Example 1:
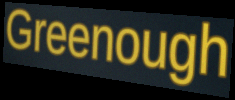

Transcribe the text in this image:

Greenough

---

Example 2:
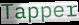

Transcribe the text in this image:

Tapper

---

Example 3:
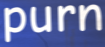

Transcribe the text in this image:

purn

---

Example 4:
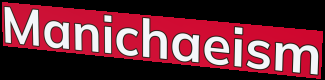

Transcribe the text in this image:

Manichaeism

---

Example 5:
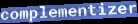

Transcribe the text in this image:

complementizer